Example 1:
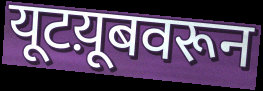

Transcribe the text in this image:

यूटय़ूबवरून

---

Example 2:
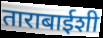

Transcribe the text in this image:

ताराबाईशी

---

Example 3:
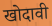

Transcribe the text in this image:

खोदावी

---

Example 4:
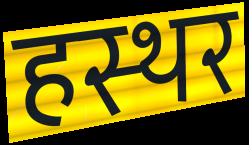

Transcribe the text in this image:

हस्थर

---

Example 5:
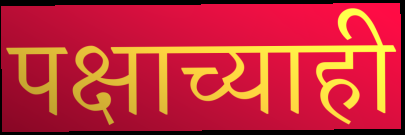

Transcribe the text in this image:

पक्षाच्याही